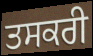
ਤਸਕਰੀ